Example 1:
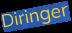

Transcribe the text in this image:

Diringer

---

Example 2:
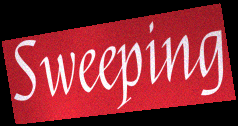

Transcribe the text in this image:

Sweeping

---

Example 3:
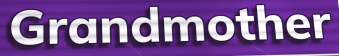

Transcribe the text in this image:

Grandmother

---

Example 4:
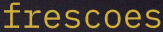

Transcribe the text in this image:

frescoes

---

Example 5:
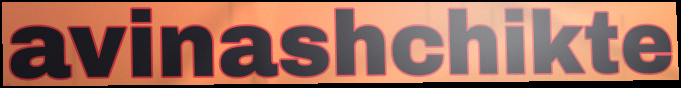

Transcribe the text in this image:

avinashchikte